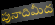
పునాదిమీద